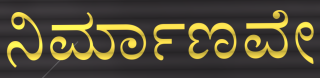
ನಿರ್ಮಾಣವೇ